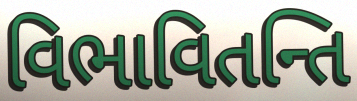
વિભાવિતન્તિ